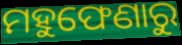
ମହୁଫେଣାରୁ